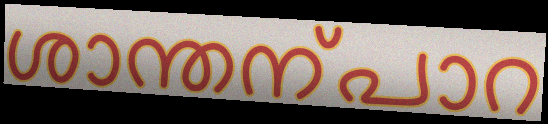
ശാന്തന്പാറ